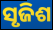
ସୃଜିଶ